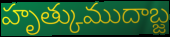
హృత్కుముదాబ్జ